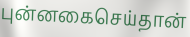
புன்னகைசெய்தான்